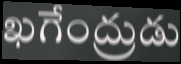
ఖగేంద్రుడు